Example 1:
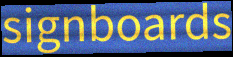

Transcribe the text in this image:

signboards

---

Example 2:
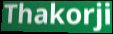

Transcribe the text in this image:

Thakorji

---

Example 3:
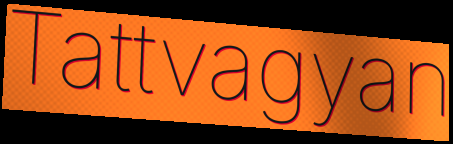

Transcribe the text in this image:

Tattvagyan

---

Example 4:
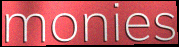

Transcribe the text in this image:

monies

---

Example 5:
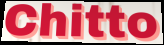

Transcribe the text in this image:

Chitto